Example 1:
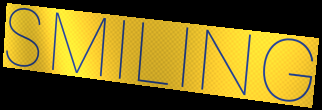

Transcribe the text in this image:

SMILING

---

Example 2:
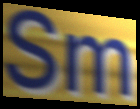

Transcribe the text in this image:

Sm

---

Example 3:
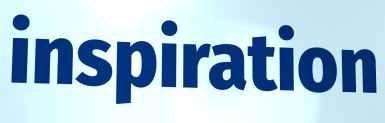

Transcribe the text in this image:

inspiration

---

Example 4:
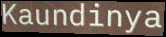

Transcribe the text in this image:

Kaundinya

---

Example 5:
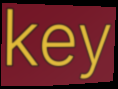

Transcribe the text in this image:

key